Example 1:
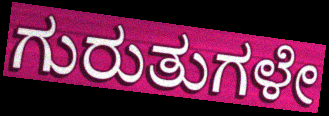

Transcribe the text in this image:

ಗುರುತುಗಳೇ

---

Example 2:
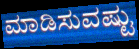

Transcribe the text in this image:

ಮಾಡಿಸುವಷ್ಟು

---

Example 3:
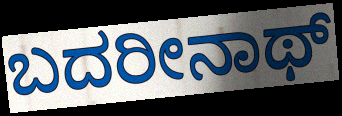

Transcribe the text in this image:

ಬದರೀನಾಥ್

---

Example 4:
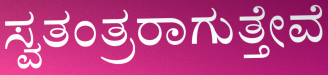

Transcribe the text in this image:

ಸ್ವತಂತ್ರರಾಗುತ್ತೇವೆ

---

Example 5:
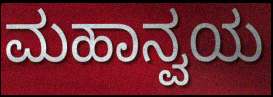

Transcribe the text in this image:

ಮಹಾನ್ವಯ